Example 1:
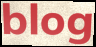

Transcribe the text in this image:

blog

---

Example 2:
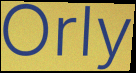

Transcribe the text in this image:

Orly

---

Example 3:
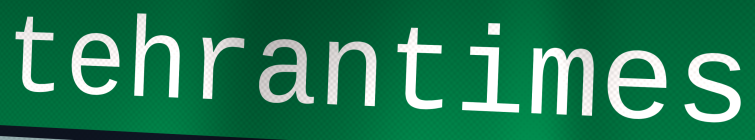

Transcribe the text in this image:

tehrantimes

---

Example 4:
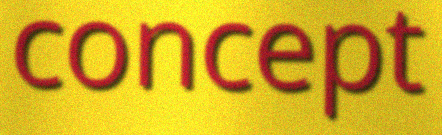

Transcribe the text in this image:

concept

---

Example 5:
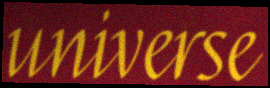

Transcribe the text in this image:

universe